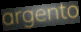
argento